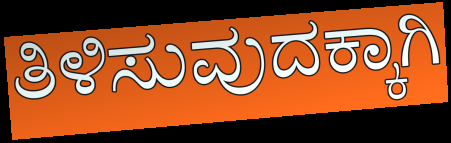
ತಿಳಿಸುವುದಕ್ಕಾಗಿ